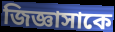
জিজ্ঞাসাকে